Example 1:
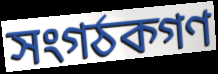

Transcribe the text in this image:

সংগঠকগণ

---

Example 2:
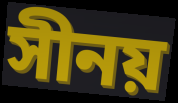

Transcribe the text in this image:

সীনয়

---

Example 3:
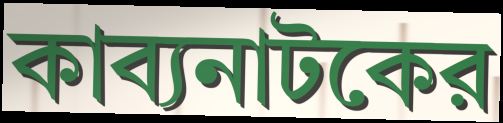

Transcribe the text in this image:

কাব্যনাটকের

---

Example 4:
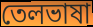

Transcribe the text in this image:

তেলভাষা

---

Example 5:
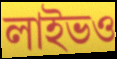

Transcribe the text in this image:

লাইভও